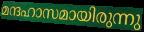
മന്ദഹാസമായിരുന്നു